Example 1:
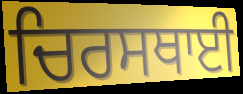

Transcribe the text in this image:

ਚਿਰਸਥਾਈ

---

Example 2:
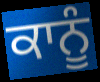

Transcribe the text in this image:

ਕਾਨੂੰ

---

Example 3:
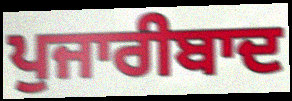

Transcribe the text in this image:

ਪੁਜਾਰੀਬਾਦ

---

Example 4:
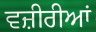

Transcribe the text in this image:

ਵਜ਼ੀਰੀਆਂ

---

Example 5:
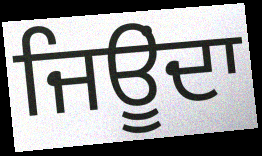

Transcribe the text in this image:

ਜਿਊੂਂਦਾ